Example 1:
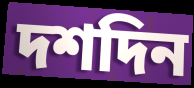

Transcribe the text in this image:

দশদিন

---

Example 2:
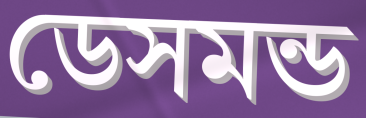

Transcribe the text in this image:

ডেসমন্ড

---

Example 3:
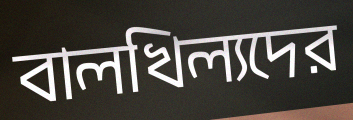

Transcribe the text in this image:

বালখিল্যদের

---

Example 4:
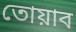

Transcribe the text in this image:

তোয়াব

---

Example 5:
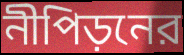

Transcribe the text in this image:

নীপিড়নের